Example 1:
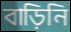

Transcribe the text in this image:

বাড়িনি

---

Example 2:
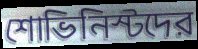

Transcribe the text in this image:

শোভিনিস্টদের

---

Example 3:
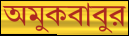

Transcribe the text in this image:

অমুকবাবুর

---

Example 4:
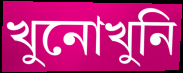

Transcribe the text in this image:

খুনোখুনি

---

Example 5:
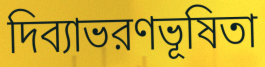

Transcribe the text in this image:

দিব্যাভরণভূষিতা